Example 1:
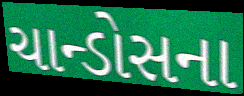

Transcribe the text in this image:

ચાન્ડોસના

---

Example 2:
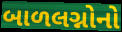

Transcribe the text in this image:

બાળલગ્નોનો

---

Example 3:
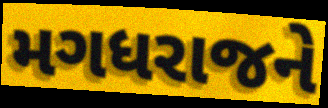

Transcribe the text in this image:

મગધરાજને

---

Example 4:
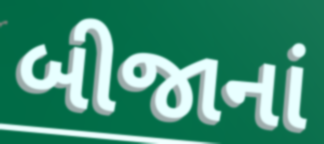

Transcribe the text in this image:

બીજાનાં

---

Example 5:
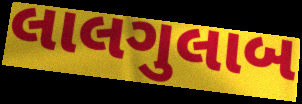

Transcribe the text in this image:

લાલગુલાબ